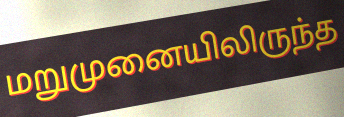
மறுமுனையிலிருந்த